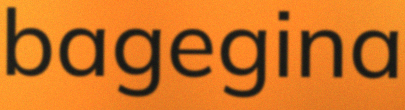
bagegina